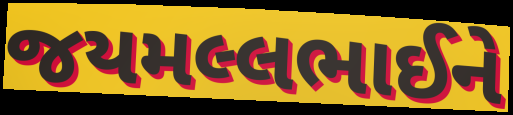
જયમલ્લભાઈને